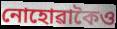
নোহোৱাকৈও